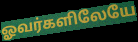
ஓவர்களிலேயே